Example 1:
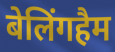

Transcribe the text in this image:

बेलिंगहैम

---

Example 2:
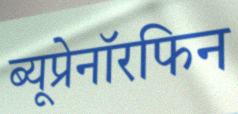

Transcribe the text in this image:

ब्यूप्रेनॉरफिन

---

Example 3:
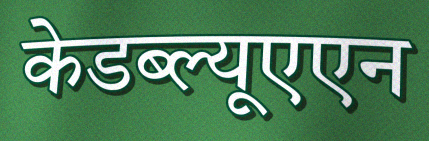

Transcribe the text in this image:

केडब्ल्यूएएन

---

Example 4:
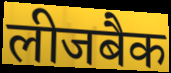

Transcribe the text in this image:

लीजबैक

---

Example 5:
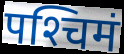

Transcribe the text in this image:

पश्चिमं